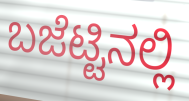
ಬಜೆಟ್ಟಿನಲ್ಲಿ